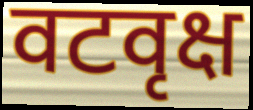
वटवृक्ष